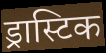
ड्रास्टिक